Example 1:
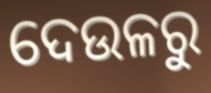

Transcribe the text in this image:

ଦେଉଳରୁ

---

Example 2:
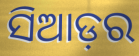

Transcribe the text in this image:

ସିଆଡ଼ର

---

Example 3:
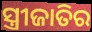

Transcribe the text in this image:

ସ୍ତ୍ରୀଜାତିର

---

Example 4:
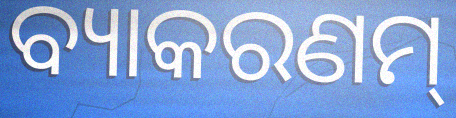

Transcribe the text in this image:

ବ୍ୟାକରଣମ୍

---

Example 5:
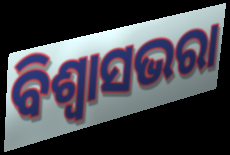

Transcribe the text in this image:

ବିଶ୍ୱାସଭରା